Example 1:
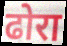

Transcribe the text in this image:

ढोरा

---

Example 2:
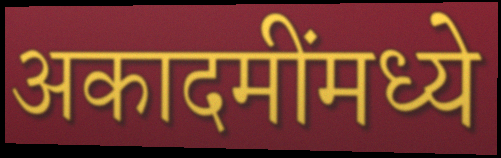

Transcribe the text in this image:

अकादमींमध्ये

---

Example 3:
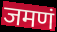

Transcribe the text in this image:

जमणं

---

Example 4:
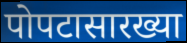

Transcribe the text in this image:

पोपटासारख्या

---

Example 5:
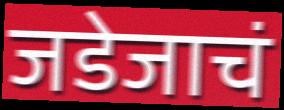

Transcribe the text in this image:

जडेजाचं